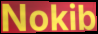
Nokib